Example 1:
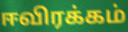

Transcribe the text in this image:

ஈவிரக்கம்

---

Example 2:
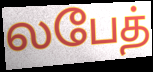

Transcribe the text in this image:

லபேத்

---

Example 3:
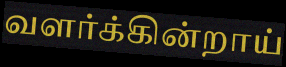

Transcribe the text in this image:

வளர்க்கின்றாய்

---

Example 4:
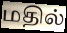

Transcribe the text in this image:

மதில்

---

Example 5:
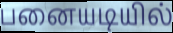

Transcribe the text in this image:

பனையடியில்